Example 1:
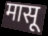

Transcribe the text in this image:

मासू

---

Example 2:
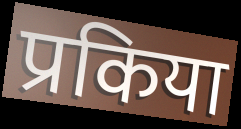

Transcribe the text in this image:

प्रकिया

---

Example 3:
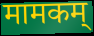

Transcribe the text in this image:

मामकम्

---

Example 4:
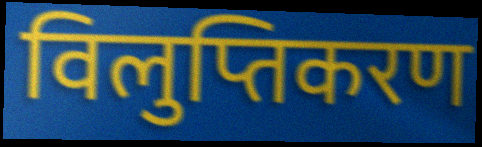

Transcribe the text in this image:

विलुप्तिकरण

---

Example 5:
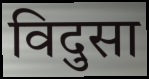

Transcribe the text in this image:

विदुसा